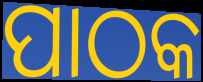
ପାଠକ